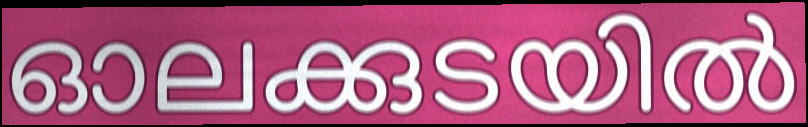
ഓലക്കുടയിൽ